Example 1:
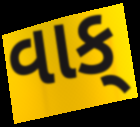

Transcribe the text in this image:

વાક્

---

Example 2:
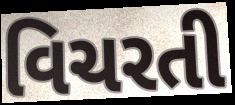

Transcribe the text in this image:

વિચરતી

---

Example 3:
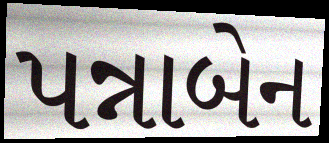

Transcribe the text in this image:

પન્નાબેન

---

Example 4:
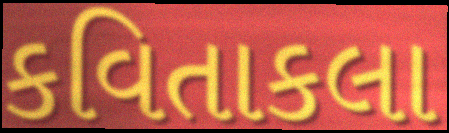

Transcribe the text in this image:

કવિતાકલા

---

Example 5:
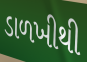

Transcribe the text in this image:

ડાળખીથી